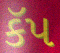
કૅપ